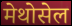
मेथोसेल